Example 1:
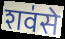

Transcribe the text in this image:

शव॑से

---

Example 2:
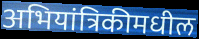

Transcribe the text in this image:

अभियांत्रिकीमधील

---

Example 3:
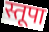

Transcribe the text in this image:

स्तूपा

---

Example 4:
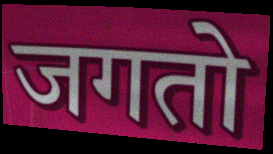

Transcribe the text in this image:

जगतो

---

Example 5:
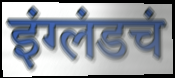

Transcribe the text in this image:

इंग्लंडचं